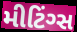
મીટિંગ્સ